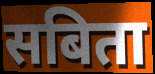
सबिता